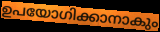
ഉപയോഗിക്കാനാകും